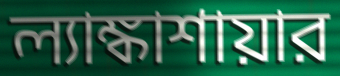
ল্যাঙ্কাশায়ার